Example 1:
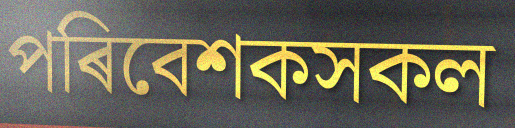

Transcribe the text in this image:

পৰিবেশকসকল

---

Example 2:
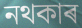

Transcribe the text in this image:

নথকাৰ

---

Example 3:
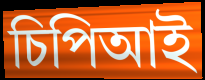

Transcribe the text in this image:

চিপিআই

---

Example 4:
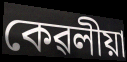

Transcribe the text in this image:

কেৱলীয়া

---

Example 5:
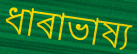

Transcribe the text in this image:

ধাৰাভাষ্য